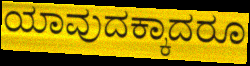
ಯಾವುದಕ್ಕಾದರೂ